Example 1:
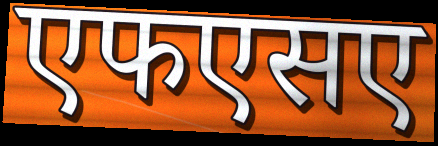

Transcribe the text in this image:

एफएसए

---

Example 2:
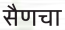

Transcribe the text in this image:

सैणचा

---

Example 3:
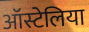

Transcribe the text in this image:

ऑस्टेलिया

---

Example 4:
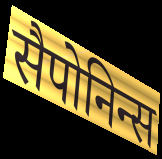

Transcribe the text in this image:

सैपोनिन्स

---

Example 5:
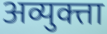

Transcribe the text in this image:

अव्युक्ता